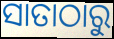
ସାତାଠାରୁ